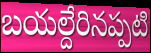
బయల్దేరినప్పటి